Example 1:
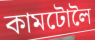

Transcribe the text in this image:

কামটোলৈ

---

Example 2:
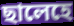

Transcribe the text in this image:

ছালেহে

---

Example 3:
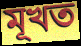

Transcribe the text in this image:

মূখত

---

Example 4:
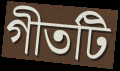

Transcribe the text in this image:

গীতটি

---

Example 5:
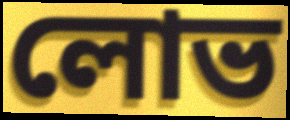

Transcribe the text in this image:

লোভ